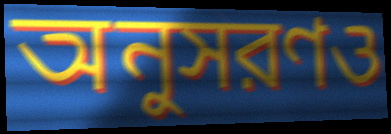
অনুসরণও